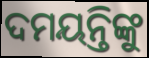
ଦମୟନ୍ତିଙ୍କୁ